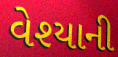
વેશ્યાની